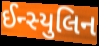
ઈન્સ્યુલિન